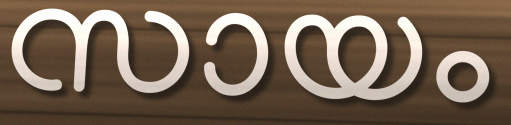
സായം